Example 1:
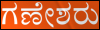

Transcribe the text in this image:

ಗಣೇಶರು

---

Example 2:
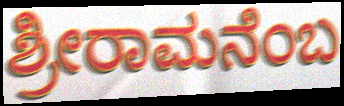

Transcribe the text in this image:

ಶ್ರೀರಾಮನೆಂಬ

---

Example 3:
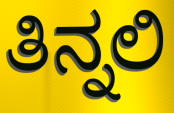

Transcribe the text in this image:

ತಿನ್ನಲಿ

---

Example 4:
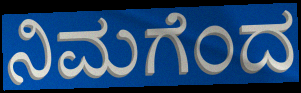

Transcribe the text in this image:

ನಿಮಗೆಂದ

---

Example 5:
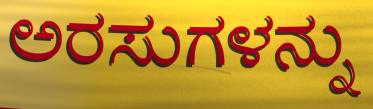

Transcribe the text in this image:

ಅರಸುಗಳನ್ನು